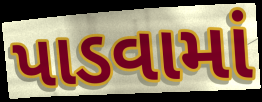
પાડવામાં